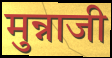
मुन्नाजी